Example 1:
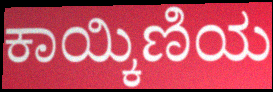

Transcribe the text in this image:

ಕಾಯ್ಕಿಣಿಯ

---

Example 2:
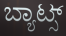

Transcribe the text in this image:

ಬ್ಯಾಟ್ಸ್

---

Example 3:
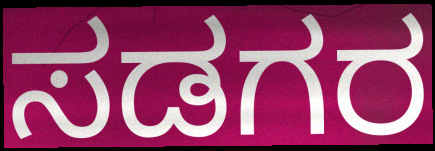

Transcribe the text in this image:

ಸಡಗರ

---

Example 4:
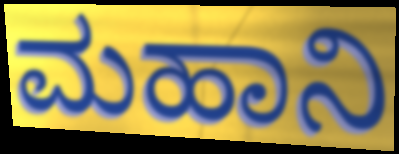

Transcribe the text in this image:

ಮಹಾನಿ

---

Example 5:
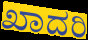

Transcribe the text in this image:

ಖಾದರಿ